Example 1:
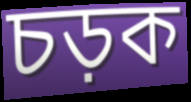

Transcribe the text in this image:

চড়ক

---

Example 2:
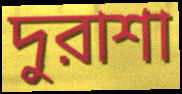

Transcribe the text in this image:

দুরাশা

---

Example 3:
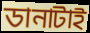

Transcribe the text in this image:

ডানাটাই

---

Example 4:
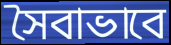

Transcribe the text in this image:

সৈবাভাবে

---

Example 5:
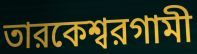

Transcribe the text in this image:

তারকেশ্বরগামী